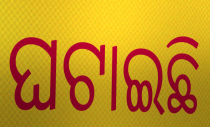
ଘଟାଇଛି